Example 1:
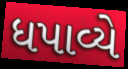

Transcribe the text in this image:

ધપાવ્યે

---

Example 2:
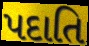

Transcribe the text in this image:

પદાતિ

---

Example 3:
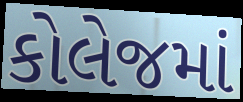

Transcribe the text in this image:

કોલેજમાં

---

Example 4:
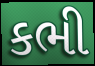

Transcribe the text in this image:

કભી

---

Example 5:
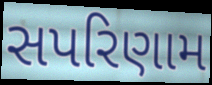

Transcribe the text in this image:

સપરિણામ